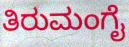
ತಿರುಮಂಗೈ